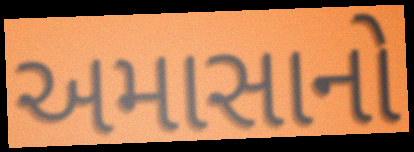
અમાસાનો